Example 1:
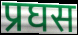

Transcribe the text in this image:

प्रघस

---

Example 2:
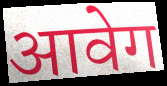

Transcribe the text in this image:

आवेग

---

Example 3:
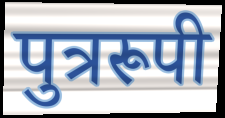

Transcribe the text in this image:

पुत्ररूपी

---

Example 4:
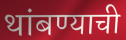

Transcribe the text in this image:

थांबण्याची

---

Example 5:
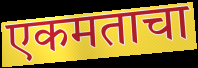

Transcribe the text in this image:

एकमताचा